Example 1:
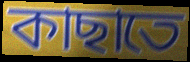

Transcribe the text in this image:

কাছাতে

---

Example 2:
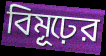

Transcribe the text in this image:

বিমূঢ়ের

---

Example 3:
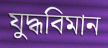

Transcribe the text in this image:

যুদ্ধবিমান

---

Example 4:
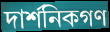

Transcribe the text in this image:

দার্শনিকগণ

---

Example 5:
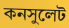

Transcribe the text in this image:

কনসুলেট